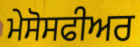
ਮੇਸੋਸਫੀਅਰ